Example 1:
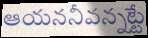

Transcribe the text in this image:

ఆయననీవన్నట్టే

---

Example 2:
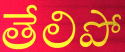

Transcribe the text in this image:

తేలిపో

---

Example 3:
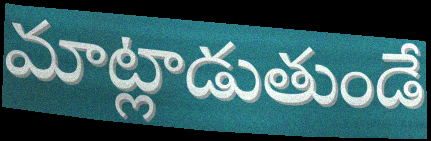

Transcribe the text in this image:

మాట్లాడుతుండే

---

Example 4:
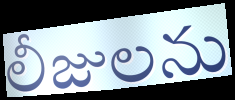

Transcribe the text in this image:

లీజులను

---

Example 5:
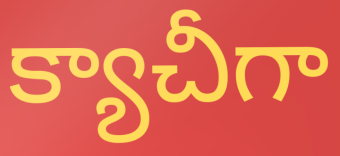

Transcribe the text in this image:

క్యాచీగా